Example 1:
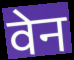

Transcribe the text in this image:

वेन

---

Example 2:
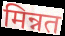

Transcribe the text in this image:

मिन्नत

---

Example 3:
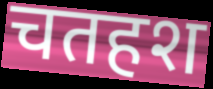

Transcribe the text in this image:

चतहश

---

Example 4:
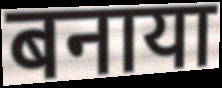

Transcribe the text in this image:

बनाया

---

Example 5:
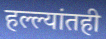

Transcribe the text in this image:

हल्ल्यांतही